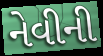
નેવીની